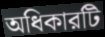
অধিকারটি